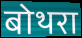
बोथरा